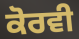
ਕੋਰਵੀ